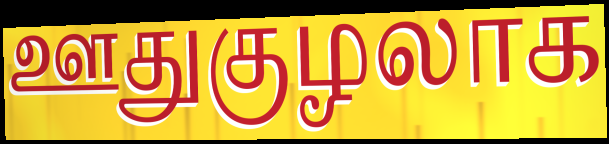
ஊதுகுழலாக